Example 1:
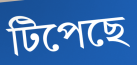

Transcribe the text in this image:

টিপেছে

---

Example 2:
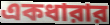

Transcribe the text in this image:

একধারার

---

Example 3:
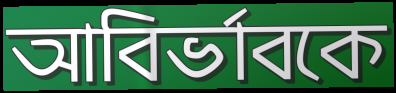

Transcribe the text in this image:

আবির্ভাবকে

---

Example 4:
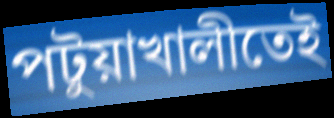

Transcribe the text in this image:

পটুয়াখালীতেই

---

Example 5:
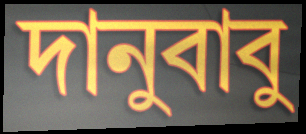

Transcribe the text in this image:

দানুবাবু